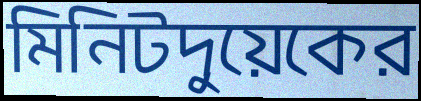
মিনিটদুয়েকের